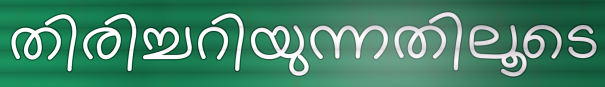
തിരിച്ചറിയുന്നതിലൂടെ